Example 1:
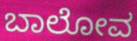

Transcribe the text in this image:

ಬಾಲೋವ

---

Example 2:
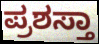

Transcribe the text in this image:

ಪ್ರಶಸ್ತಾ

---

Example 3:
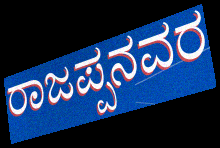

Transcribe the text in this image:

ರಾಜಪ್ಪನವರ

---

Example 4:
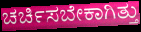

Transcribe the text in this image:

ಚರ್ಚಿಸಬೇಕಾಗಿತ್ತು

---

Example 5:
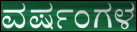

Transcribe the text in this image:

ವರ್ಷಂಗಳ